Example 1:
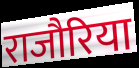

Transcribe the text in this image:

राजौरिया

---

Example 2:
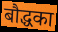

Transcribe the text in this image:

बौद्धका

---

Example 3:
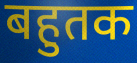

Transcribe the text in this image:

बहुतक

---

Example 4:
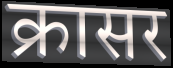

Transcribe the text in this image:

क्रासर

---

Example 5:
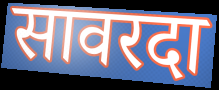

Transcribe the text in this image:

सावरदा